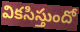
వికసిస్తుందో